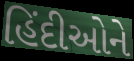
હિંદીઓને